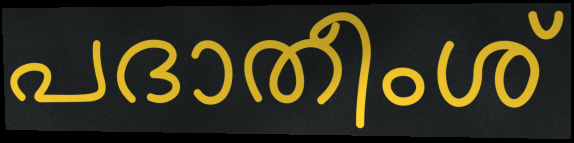
പദാതീംശ്